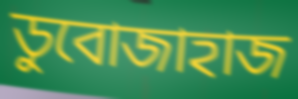
ডুবোজাহাজ